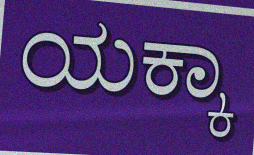
ಯಕ್ಕಾ